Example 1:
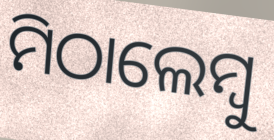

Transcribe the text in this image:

ମିଠାଲେମ୍ବୁ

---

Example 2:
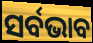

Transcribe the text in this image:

ସର୍ବଭାବ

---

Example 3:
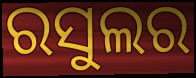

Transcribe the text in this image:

ରସୁଲର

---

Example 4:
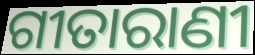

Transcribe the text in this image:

ଗୀତାରାଣୀ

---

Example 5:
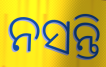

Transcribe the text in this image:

ନସନ୍ତି